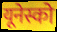
यूनेस्को